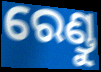
ରେଣ୍ଡୁ